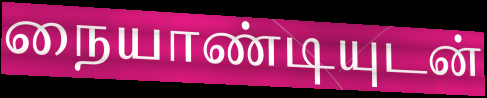
நையாண்டியுடன்